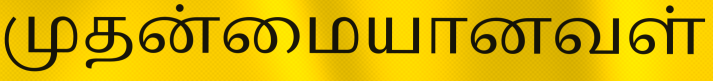
முதன்மையானவள்